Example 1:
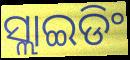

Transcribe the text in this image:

ସ୍ଲାଇଡିଂ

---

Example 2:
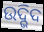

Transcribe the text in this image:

ଉଦ୍ଭିଦ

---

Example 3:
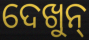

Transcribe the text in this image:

ଦେଖୁନ୍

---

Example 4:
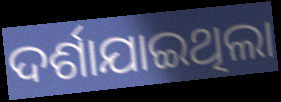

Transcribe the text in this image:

ଦର୍ଶାଯାଇଥିଲା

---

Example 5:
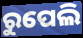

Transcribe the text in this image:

ରୁପେଲି